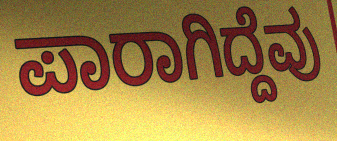
ಪಾರಾಗಿದ್ದೆವು